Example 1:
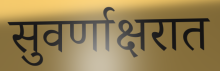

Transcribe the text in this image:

सुवर्णाक्षरात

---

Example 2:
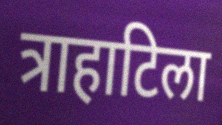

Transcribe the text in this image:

त्राहाटिला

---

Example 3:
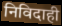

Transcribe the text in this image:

निविदाही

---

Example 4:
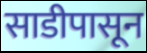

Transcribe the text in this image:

साडीपासून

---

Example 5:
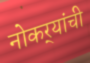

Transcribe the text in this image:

नोकर्यांची